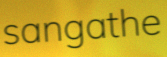
sangathe